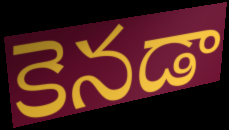
కెనడా